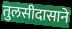
तुलसीदासाने